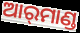
ଆର୍‌ମାଣ୍ଡ